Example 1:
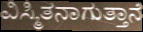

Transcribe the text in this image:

ವಿಸ್ಮಿತನಾಗುತ್ತಾನೆ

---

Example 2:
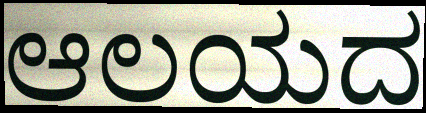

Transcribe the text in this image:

ಆಲಯದ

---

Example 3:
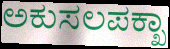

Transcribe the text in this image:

ಅಕುಸಲಪಕ್ಖಾ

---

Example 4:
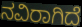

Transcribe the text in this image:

ನವಿರಾಗಿದೆ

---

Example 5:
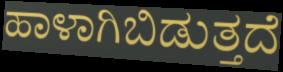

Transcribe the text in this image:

ಹಾಳಾಗಿಬಿಡುತ್ತದೆ